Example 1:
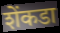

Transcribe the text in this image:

शेंकडा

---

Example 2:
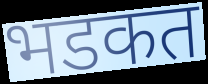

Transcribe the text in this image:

भडकत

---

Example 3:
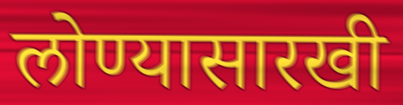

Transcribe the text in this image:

लोण्यासारखी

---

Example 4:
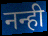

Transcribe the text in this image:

नन्ही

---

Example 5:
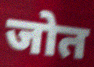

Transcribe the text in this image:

जोत